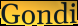
Gondi